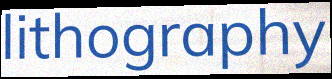
lithography